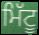
ਮਿੱਟੂ